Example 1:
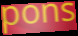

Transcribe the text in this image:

pons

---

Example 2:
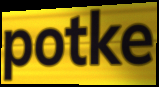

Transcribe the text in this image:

potke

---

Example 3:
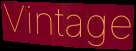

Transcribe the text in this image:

Vintage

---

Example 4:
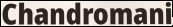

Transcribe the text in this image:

Chandromani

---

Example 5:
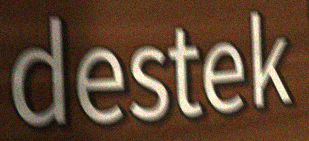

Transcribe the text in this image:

destek